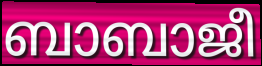
ബാബാജീ